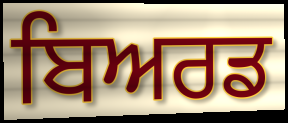
ਬਿਅਰਡ